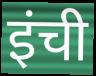
इंची